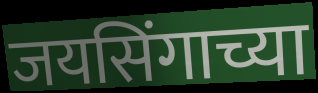
जयसिंगाच्या